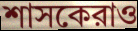
শাসকেরাও